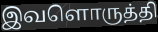
இவளொருத்தி